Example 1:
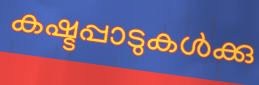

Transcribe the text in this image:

കഷ്ടപ്പാടുകൾക്കു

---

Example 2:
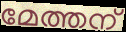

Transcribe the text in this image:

മേത്തന്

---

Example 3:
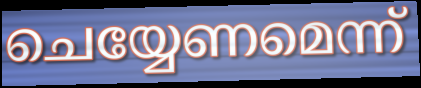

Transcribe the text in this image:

ചെയ്യേണമെന്ന്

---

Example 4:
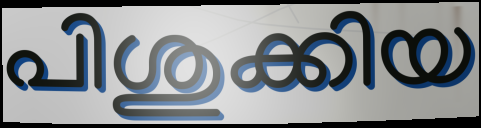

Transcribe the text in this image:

പിശുക്കിയ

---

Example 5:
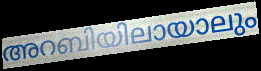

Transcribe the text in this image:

അറബിയിലായാലും